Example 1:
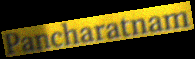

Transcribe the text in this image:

Pancharatnam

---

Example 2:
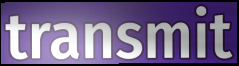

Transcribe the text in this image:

transmit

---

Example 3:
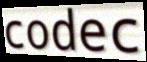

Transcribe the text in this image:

codec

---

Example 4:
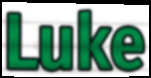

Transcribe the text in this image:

Luke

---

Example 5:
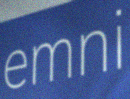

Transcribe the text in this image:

emni